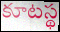
కూటస్థ